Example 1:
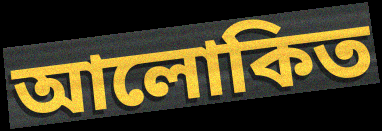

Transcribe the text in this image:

আলোকিত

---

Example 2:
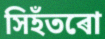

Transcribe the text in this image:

সিহঁতৰো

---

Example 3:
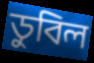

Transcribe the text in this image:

ডুবিল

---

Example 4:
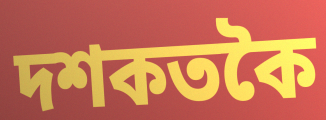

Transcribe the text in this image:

দশকতকৈ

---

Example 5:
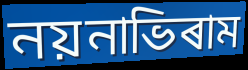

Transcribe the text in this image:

নয়নাভিৰাম